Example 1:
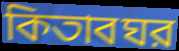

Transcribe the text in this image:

কিতাবঘর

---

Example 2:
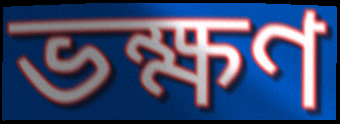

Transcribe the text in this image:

ভক্ষণ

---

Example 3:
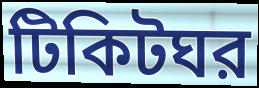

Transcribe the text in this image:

টিকিটঘর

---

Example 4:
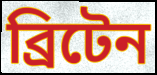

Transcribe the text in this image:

ব্রিটেন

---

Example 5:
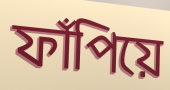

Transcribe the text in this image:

ফাঁপিয়ে